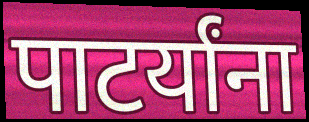
पाटर्यांना